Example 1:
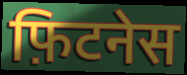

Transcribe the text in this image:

फ़िटनेस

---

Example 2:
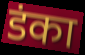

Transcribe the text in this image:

डंका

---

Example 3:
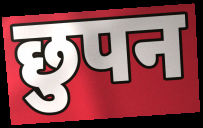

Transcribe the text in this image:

छुपन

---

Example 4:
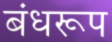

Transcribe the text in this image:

बंधरूप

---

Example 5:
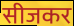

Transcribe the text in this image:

सीजकर